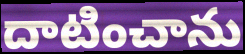
దాటించాను